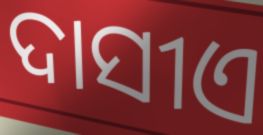
ଦାସୀଏ